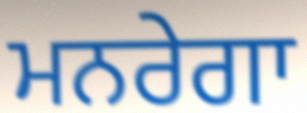
ਮਨਰੇਗਾ